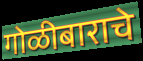
गोळीबाराचे